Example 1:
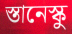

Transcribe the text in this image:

স্তানেস্কু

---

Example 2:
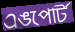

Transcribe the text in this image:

এঙপোর্ট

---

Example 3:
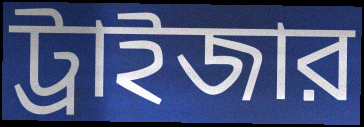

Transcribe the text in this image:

ট্রাইজার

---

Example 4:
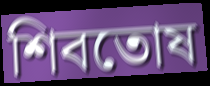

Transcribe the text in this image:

শিবতোষ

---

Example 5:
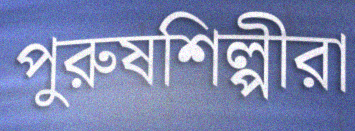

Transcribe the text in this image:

পুরুষশিল্পীরা